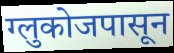
ग्लुकोजपासून